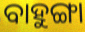
ବାହୁଙ୍ଗା